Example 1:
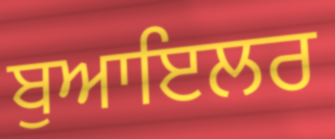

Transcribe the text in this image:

ਬੁਆਇਲਰ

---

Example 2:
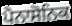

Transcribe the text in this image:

ਪੈਨਾਸੋਨਿਕ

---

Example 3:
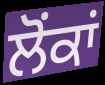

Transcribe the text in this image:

ਲੋਂਕਾਂ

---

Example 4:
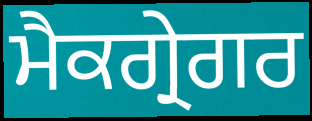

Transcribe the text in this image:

ਮੈਕਗ੍ਰੇਗਰ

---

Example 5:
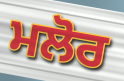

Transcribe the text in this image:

ਮਲੋਰ